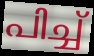
പിച്ച്